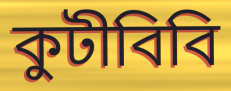
কুটীবিবি